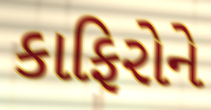
કાફિરોને